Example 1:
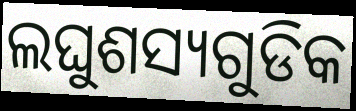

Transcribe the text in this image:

ଲଘୁଶସ୍ୟଗୁଡିକ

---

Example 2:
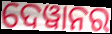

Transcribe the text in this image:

ଦେୱାନର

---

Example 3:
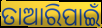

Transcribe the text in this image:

ତାଆରିପାଇଁ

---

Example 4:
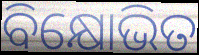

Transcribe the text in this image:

ବିକ୍ଷୋଭିତ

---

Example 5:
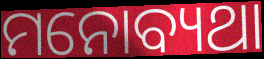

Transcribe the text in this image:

ମନୋବ୍ୟଥା